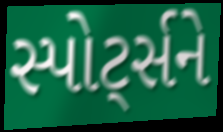
સ્પોર્ટ્સને